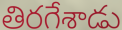
తిరగేశాడు